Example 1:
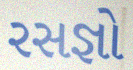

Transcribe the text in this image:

રસજ્ઞો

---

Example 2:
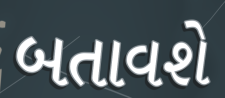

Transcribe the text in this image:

બતાવશે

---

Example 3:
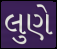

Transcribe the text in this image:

લુણે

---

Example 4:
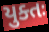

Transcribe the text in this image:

યુક્તઃ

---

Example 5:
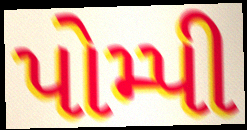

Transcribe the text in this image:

પોમ્પી